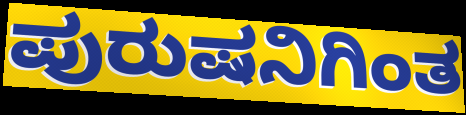
ಪುರುಷನಿಗಿಂತ